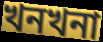
খনখনা